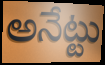
అనేట్టు